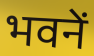
भवनें